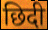
छिदी